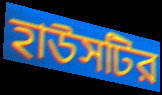
হাউসটির